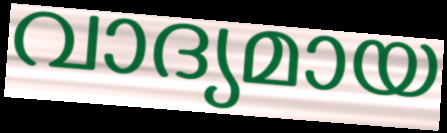
വാദ്യമായ